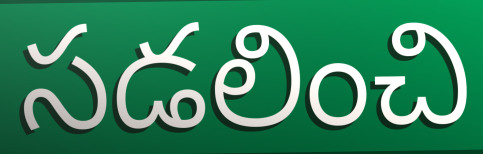
సడలించి